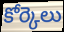
కోర్కెలు